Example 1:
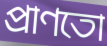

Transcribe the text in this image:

প্রাণতো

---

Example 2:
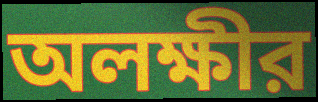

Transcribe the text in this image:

অলক্ষীর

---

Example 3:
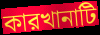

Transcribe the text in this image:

কারখানাটি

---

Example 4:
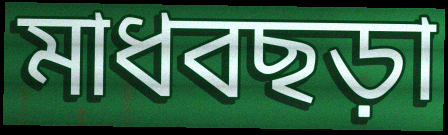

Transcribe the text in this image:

মাধবছড়া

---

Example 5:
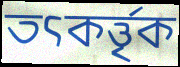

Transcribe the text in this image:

তৎকর্ত্তৃক